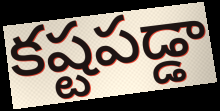
కష్టపడ్డా